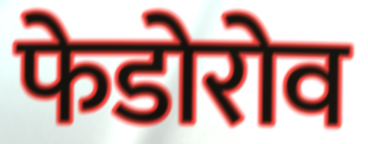
फेडोरोव